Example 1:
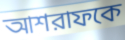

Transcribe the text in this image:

আশরাফকে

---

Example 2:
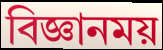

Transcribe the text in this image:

বিজ্ঞানময়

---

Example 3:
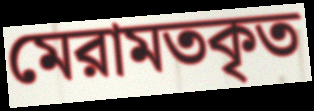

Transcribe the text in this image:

মেরামতকৃত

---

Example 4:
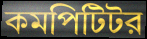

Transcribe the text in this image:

কমপিটিটর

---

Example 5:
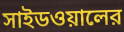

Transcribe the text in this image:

সাইডওয়ালের